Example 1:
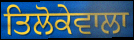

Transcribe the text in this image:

ਤਿਲੋਕੇਵਾਲਾ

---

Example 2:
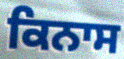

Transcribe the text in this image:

ਕਿਨਾਸ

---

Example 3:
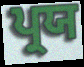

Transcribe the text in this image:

ਪ੍ਰਯ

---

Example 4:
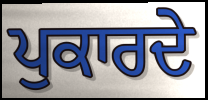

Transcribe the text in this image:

ਪੁਕਾਰਦੇ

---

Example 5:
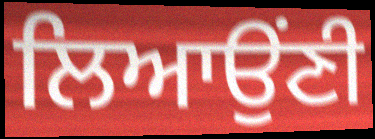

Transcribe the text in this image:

ਲਿਆਉਂਣੀ